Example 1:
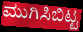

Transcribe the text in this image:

ಮುಗಿಸಿಬಿಟ್ಟ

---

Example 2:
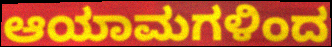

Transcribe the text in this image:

ಆಯಾಮಗಳಿಂದ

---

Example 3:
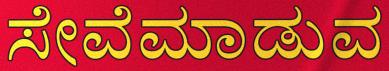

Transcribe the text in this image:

ಸೇವೆಮಾಡುವ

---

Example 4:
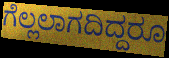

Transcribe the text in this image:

ಗೆಲ್ಲಲಾಗದಿದ್ದರೂ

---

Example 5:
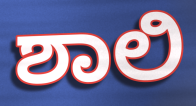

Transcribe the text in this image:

ಶಾಲಿ